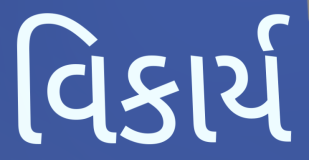
વિકાર્ય